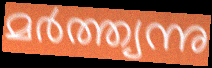
മർത്ത്യന്നു